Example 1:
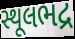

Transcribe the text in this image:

સ્થૂલભદ્ર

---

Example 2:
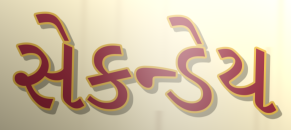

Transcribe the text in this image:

સેકન્ડેય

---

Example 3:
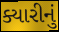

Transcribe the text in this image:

ક્યારીનું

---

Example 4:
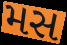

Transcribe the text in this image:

મસ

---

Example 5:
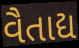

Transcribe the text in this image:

વૈતાદ્ય